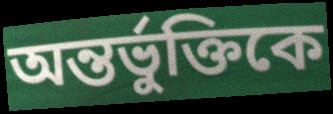
অন্তর্ভুক্তিকে